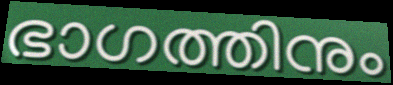
ഭാഗത്തിനും